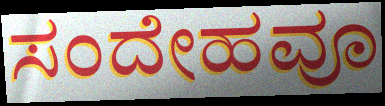
ಸಂದೇಹವೂ